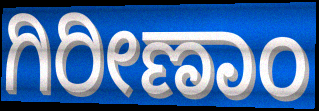
ಗಿರೀಣಾಂ